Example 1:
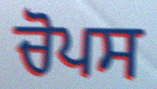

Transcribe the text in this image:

ਚੋਪਸ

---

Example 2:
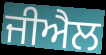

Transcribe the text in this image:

ਜੀਐਲ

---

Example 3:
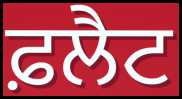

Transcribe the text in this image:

ਫ਼ਲੈਟ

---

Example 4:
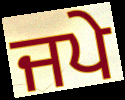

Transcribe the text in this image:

ਜਪੇ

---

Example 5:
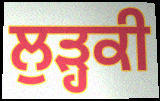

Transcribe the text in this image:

ਲੁੜ੍ਹਕੀ